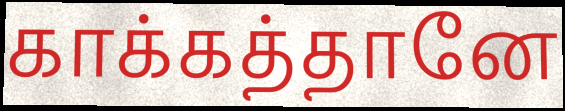
காக்கத்தானே